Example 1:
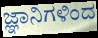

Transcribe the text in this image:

ಜ್ಞಾನಿಗಳಿಂದ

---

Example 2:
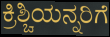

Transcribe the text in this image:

ಕ್ರಿಶ್ಚಿಯನ್ನರಿಗೆ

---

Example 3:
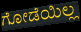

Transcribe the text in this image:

ಗೋಡೆಯಿಲ್ಲ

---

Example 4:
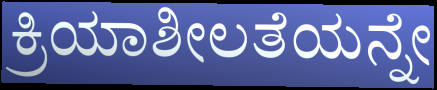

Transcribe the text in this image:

ಕ್ರಿಯಾಶೀಲತೆಯನ್ನೇ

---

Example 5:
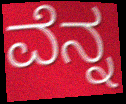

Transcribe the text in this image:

ವೆನ್ನ